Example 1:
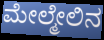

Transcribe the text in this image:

ಮೇಲ್ಮೇಲಿನ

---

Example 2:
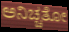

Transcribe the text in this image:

ಅನಿಚ್ಚತೋ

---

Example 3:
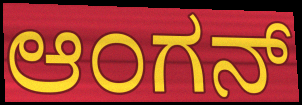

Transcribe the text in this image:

ಆಂಗನ್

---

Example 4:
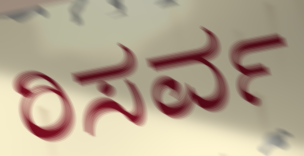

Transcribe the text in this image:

ರಿಸರ್ವ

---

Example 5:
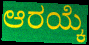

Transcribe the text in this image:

ಆರಯ್ಕೆ